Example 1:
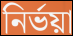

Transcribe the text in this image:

নির্ভয়া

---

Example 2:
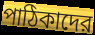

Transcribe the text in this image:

পাঠিকাদের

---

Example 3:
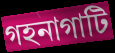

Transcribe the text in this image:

গহনাগাটি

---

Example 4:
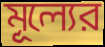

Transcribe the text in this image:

মূল্যের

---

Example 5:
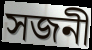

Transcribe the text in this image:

সজনী